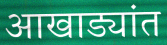
आखाड्यांत